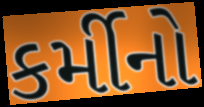
કર્મીનો